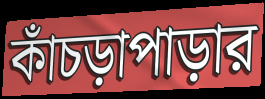
কাঁচড়াপাড়ার